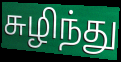
சுழிந்து